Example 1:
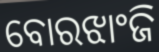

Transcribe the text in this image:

ବୋରଝାଂଜି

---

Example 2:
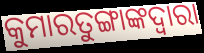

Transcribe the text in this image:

କୁମାରତୁଙ୍ଗାଙ୍କଦ୍ୱାରା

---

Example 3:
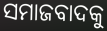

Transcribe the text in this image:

ସମାଜବାଦକୁ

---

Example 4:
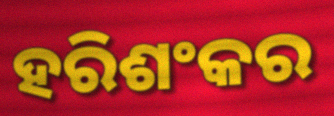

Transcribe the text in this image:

ହରିଶଂକର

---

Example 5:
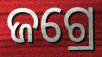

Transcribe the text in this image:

ଜଗ୍ରେ